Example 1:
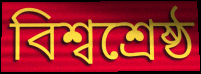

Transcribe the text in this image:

বিশ্বশ্ৰেষ্ঠ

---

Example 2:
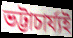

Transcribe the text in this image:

ভট্টাচাৰ্য্যই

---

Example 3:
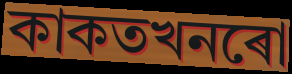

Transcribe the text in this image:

কাকতখনৰো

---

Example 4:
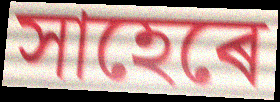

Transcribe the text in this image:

সাহেৰে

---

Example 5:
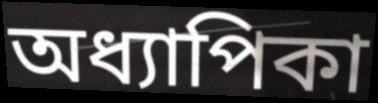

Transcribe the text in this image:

অধ্যাপিকা